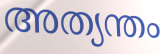
അത്യന്തം